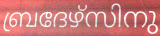
ബ്രദേഴ്സിനു